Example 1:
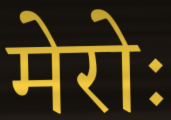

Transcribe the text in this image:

मेरोः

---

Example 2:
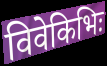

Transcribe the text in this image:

विवेकिभिः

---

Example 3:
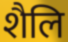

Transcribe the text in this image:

शैलि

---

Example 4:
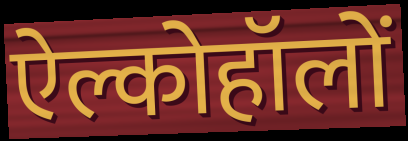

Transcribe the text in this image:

ऐल्कोहॉलों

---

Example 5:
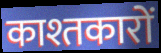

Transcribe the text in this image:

काश्तकारों